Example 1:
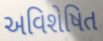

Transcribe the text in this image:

અવિશેષિત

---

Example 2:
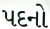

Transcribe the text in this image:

પદનો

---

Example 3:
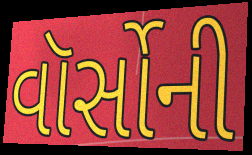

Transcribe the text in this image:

વૉર્સોની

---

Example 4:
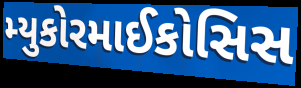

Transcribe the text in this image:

મ્યુકોરમાઈકોસિસ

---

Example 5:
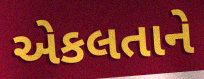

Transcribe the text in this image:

એકલતાને